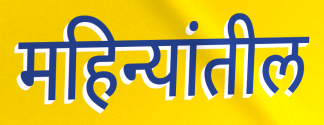
महिन्यांतील